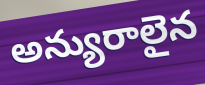
అన్యురాలైన